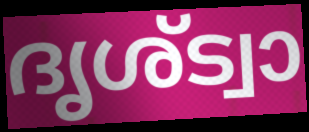
ദൃശ്ട്വാ